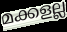
മക്കളല്ല